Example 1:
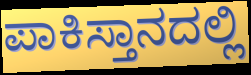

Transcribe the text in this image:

ಪಾಕಿಸ್ತಾನದಲ್ಲಿ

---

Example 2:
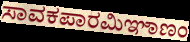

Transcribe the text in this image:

ಸಾವಕಪಾರಮಿಞಾಣಂ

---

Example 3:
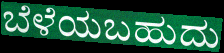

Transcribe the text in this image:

ಬೆಳೆಯಬಹುದು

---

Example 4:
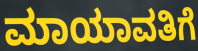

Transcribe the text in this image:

ಮಾಯಾವತಿಗೆ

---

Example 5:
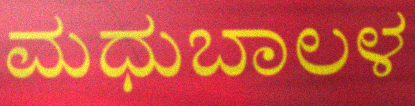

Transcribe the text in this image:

ಮಧುಬಾಲಳ